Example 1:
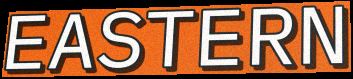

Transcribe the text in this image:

EASTERN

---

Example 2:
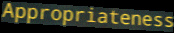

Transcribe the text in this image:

Appropriateness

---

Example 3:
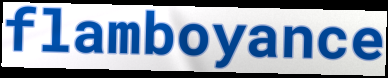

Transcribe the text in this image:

flamboyance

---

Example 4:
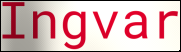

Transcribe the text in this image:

Ingvar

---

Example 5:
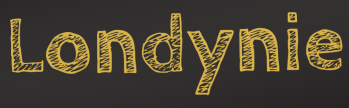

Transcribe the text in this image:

Londynie